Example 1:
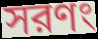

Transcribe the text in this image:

সরণং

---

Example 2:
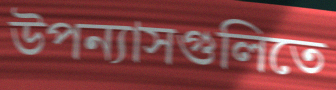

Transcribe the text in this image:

উপন্যাসগুলিতে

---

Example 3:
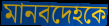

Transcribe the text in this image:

মানবদেহকে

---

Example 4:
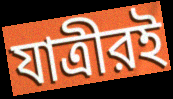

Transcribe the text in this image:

যাত্রীরই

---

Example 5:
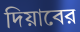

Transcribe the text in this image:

দিয়াবের